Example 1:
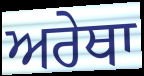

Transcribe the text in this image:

ਅਰੇਥਾ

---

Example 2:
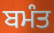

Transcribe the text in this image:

ਬਮੰਤ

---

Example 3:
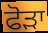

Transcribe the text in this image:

ਫੋੜਾ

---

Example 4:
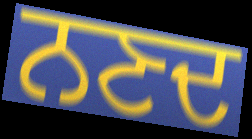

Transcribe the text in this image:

ਨਣਦ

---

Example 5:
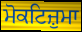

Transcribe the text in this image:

ਮੋਕਟਿਜ਼ੁਮਾ